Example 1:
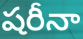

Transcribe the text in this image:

షరీనా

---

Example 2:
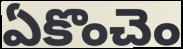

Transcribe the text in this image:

ఏకొంచెం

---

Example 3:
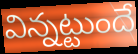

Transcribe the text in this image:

విన్నట్టుందే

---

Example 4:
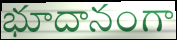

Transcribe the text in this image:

భూదానంగా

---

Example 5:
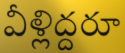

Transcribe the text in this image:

వీళ్లిద్దరూ